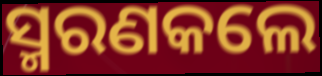
ସ୍ମରଣକଲେ